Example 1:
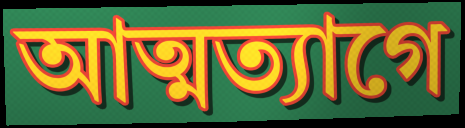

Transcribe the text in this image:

আত্মত্যাগে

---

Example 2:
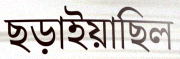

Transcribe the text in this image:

ছড়াইয়াছিল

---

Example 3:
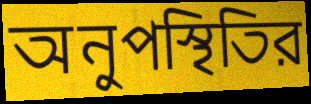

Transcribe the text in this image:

অনুপস্থিতির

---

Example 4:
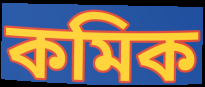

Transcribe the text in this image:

কমিক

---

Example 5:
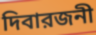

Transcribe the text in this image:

দিবারজনী